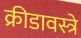
क्रीडावस्त्रे